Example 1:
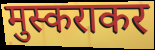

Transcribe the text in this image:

मुस्कराकर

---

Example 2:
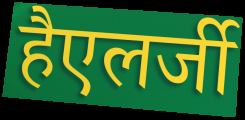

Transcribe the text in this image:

हैएलर्जी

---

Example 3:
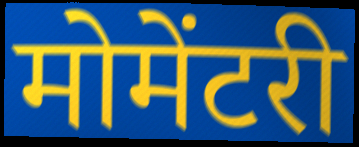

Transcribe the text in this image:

मोमेंटरी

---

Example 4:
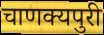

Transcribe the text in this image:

चाणक्यपुरी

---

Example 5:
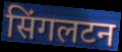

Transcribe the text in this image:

सिंगलटन